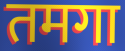
तमगा